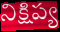
నిక్షిప్య